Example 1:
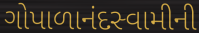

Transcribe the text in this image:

ગોપાળાનંદસ્વામીની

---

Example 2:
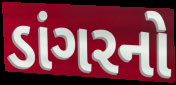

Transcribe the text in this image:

ડાંગરનો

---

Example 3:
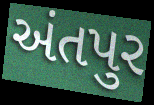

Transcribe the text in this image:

અંતપુર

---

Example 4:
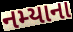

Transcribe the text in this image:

નમ્યાના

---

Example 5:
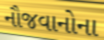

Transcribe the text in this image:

નૌજવાનોના